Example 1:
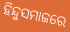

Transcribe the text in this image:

ହିନ୍ଦୁସମାଜରେ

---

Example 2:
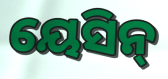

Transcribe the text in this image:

ୟେସିନ୍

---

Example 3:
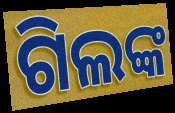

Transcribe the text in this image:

ଗିଲଙ୍କ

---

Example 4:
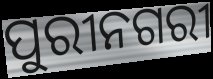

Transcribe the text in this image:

ପୁରୀନଗରୀ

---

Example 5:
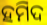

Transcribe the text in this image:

ହମିଦ